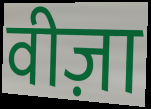
वीज़ा